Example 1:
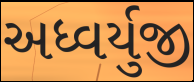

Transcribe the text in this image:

અધ્વર્યુજી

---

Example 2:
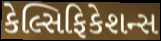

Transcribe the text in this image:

કેલ્સિફિકેશન્સ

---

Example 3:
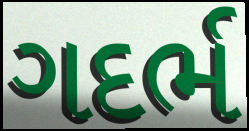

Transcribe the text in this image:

ગદર્ભ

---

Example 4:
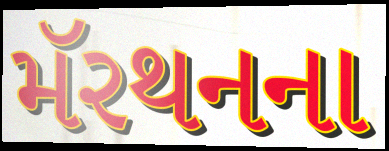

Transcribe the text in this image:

મૅરથનના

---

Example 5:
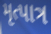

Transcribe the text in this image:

મૃત્પાત્ર